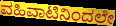
ವಹಿವಾಟಿನಿಂದಲೇ